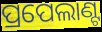
ପ୍ରପେଲାଣ୍ଟ